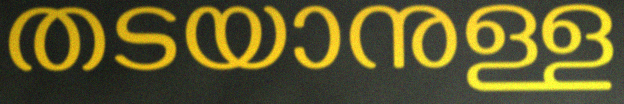
തടയാനുള്ള